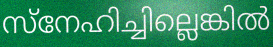
സ്നേഹിച്ചില്ലെങ്കിൽ